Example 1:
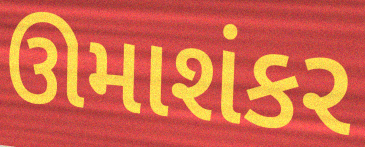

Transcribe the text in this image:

ઊમાશંકર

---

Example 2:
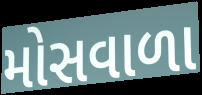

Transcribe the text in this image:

મોસવાળા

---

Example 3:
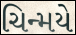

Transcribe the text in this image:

ચિન્મયે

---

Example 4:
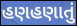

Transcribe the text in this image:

હણહણાતું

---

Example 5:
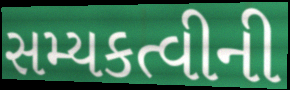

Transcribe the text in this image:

સમ્યકત્વીની